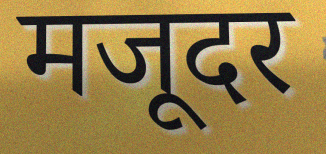
मजूदर